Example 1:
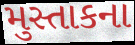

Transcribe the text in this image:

મુસ્તાકના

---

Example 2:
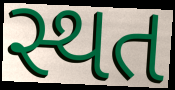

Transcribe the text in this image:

સ્થત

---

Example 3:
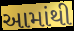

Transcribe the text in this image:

આમાંથી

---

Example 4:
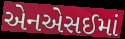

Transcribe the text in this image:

એનએસઈમાં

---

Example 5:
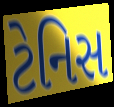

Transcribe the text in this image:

ટેનિસ